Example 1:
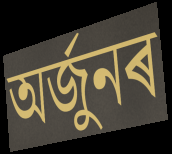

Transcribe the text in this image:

অৰ্জুনৰ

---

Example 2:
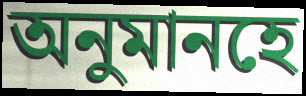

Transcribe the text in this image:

অনুমানহে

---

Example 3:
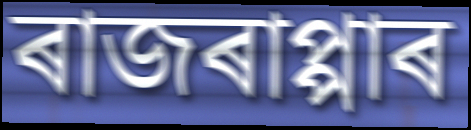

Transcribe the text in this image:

ৰাজৰাপ্পাৰ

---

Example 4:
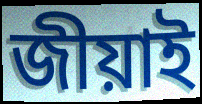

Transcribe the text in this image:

জীয়াই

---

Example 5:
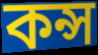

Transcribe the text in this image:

কন্স